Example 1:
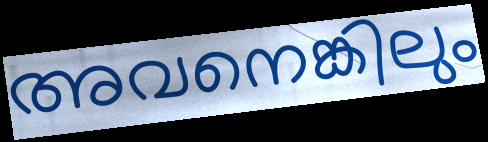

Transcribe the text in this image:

അവനെങ്കിലും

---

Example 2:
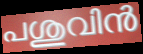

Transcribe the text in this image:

പശുവിൻ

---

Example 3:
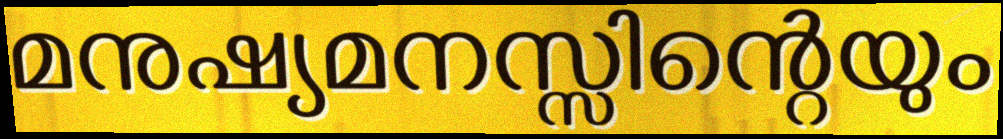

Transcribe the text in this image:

മനുഷ്യമനസ്സിന്റെയും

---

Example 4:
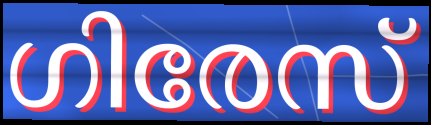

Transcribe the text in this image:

ഗിരേസ്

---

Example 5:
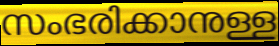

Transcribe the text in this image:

സംഭരിക്കാനുള്ള